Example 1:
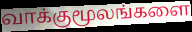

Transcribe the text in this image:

வாக்குமூலங்களை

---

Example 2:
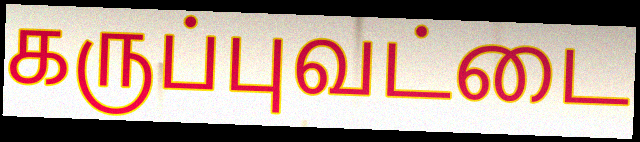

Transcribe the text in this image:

கருப்புவட்டை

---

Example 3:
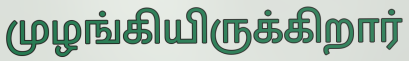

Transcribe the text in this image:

முழங்கியிருக்கிறார்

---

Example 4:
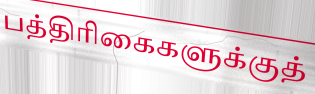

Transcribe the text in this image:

பத்திரிகைகளுக்குத்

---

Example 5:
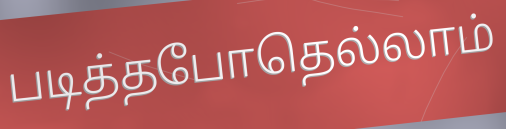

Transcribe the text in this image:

படித்தபோதெல்லாம்